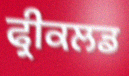
ਫ੍ਰੀਕਲਡ